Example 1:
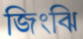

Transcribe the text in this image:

জিংঝি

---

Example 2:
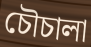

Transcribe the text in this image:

চৌচালা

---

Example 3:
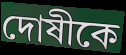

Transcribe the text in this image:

দোষীকে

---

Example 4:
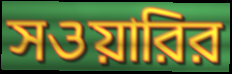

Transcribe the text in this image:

সওয়ারির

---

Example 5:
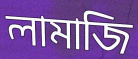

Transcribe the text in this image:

লামাজি